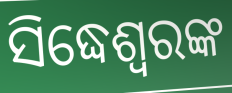
ସିଦ୍ଧେଶ୍ୱରଙ୍କ